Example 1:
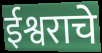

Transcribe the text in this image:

ईश्वराचे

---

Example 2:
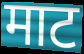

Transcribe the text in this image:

माट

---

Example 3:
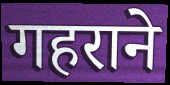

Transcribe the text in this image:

गहराने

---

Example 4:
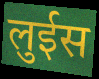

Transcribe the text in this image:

लुईस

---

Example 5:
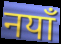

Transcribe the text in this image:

नयाँ